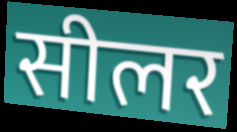
सीलर